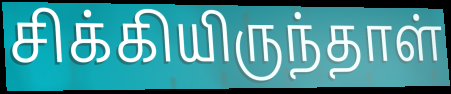
சிக்கியிருந்தாள்